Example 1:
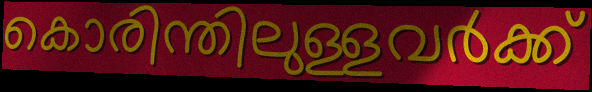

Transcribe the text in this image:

കൊരിന്തിലുള്ളവർക്ക്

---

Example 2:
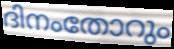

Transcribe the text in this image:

ദിനംതോറും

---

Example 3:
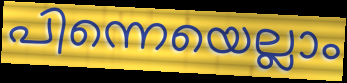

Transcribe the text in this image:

പിന്നെയെല്ലാം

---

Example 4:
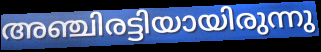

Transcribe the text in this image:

അഞ്ചിരട്ടിയായിരുന്നു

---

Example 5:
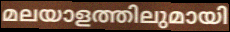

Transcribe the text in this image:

മലയാളത്തിലുമായി